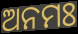
ଅନମଃ